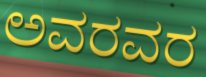
ಅವರವರ